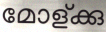
മോള്ക്കു